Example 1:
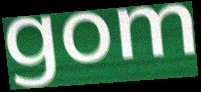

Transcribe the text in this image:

gom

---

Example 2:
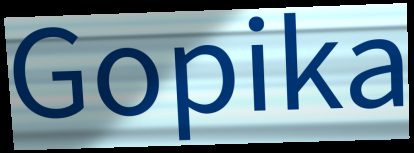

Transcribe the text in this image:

Gopika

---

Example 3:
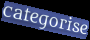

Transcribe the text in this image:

categorise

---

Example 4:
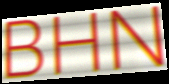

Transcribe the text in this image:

BHN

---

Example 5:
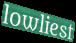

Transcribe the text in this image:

lowliest